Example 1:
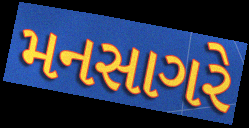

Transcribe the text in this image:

મનસાગરે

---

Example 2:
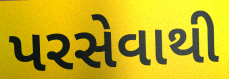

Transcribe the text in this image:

પરસેવાથી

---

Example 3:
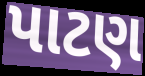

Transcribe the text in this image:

પાટણ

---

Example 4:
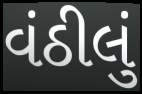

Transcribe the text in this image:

વંઠીલું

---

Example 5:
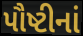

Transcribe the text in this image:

પૌષ્ટીનાં